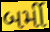
બર્મી